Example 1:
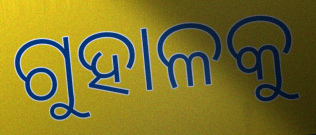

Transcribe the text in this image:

ଗୁହାଳକୁ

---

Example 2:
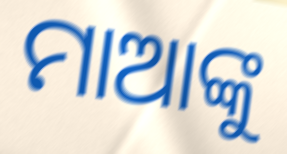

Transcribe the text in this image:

ମାଆଙ୍କୁ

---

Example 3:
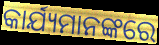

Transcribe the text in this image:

କାର୍ଯ୍ୟମାନଙ୍କରେ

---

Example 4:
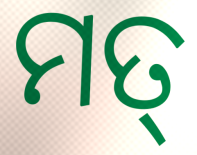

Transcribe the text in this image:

ମତ୍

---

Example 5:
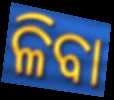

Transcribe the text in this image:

ଳିବା